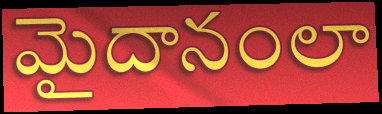
మైదానంలా